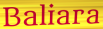
Baliara